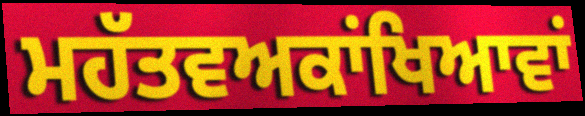
ਮਹੱਤਵਅਕਾਂਖਿਆਵਾਂ